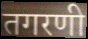
तगरणी